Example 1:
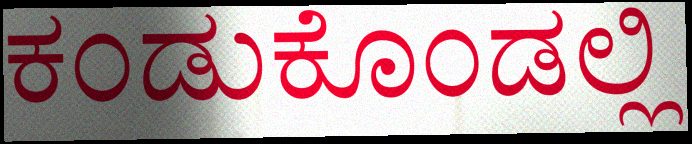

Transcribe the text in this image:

ಕಂಡುಕೊಂಡಲ್ಲಿ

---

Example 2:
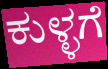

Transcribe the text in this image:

ಕುಳ್ಳಗೆ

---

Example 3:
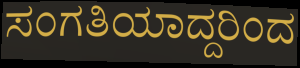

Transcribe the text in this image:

ಸಂಗತಿಯಾದ್ದರಿಂದ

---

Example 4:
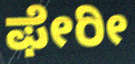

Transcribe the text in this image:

ಫೇರೀ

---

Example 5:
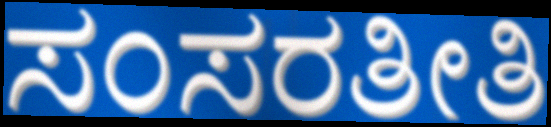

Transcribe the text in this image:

ಸಂಸರತೀತಿ